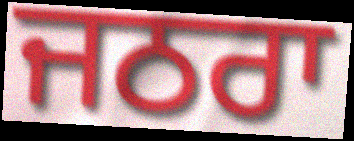
ਜਠਰਾ